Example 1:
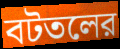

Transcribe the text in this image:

বটতলের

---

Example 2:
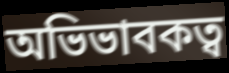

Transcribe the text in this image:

অভিভাবকত্ব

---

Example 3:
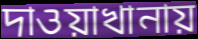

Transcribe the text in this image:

দাওয়াখানায়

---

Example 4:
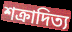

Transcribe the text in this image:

শক্রাদিত্য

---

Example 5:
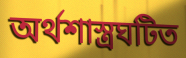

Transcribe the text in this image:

অর্থশাস্ত্রঘটিত